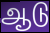
ஆடு